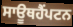
ਸਾਊਥਹੈਂਪਟਨ